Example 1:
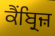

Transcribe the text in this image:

ਕੈਂਬ੍ਰਿਜ਼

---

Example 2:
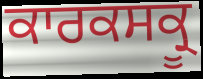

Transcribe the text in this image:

ਕਾਰਕਸਕ੍ਰੂ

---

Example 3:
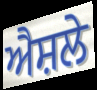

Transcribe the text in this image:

ਐਸ਼ਲੇ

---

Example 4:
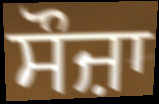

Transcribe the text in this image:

ਸੌਜ਼ਾ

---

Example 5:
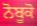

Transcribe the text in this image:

ਨੋਬੂਕੋ